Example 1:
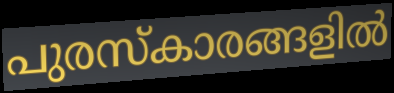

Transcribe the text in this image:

പുരസ്കാരങ്ങളിൽ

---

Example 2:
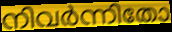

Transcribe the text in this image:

നിവർന്നിതോ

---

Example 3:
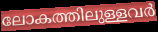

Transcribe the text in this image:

ലോകത്തിലുള്ളവർ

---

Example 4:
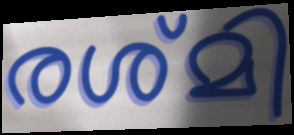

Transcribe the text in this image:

രശ്മി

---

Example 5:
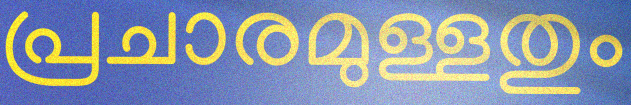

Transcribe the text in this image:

പ്രചാരമുള്ളതും